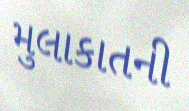
મુલાકાતની